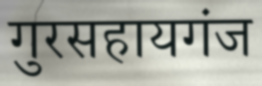
गुरसहायगंज